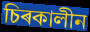
চিৰকালীন